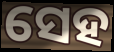
ସେହ